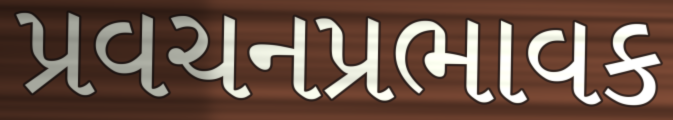
પ્રવચનપ્રભાવક